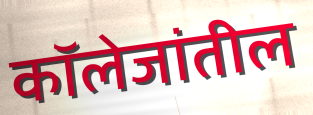
कॉलेजांतील